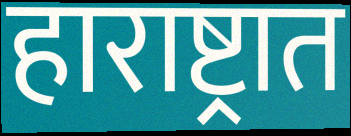
हाराष्ट्रात